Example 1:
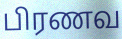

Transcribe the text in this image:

பிரணவ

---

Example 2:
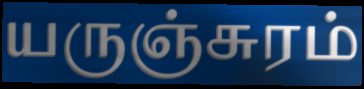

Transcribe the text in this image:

யருஞ்சுரம்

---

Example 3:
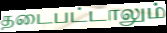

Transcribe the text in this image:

தடைபட்டாலும்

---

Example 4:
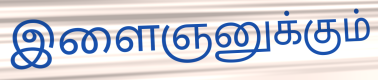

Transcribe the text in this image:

இளைஞனுக்கும்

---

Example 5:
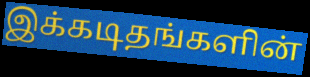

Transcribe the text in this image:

இக்கடிதங்களின்